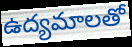
ఉద్యమాలతో